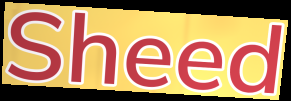
Sheed